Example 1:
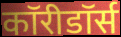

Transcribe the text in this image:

कॉरीडॉर्स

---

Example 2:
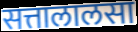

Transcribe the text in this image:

सत्तालालसा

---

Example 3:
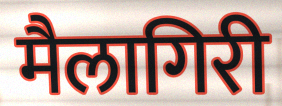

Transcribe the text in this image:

मैलागिरी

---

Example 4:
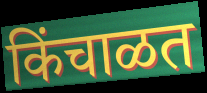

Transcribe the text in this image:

किंचाळत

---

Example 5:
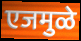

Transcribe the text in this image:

एजमुळे